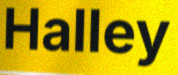
Halley